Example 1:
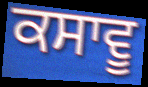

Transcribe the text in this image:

ਕਸਾਵੂ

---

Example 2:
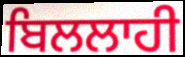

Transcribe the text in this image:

ਬਿਲਲਾਹੀ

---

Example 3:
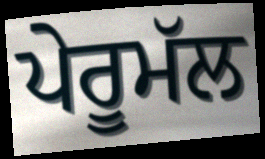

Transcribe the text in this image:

ਪੇਰੂਮੱਲ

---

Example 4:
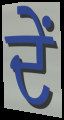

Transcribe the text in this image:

ਦੇਂ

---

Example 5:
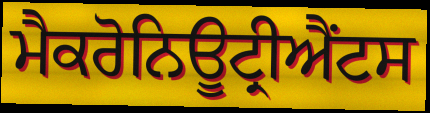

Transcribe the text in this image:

ਮੈਕਰੋਨਿਊਟ੍ਰੀਐਂਟਸ